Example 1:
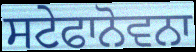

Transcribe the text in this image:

ਸਟੇਫਾਨੋਵਨਾ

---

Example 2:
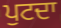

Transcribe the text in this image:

ਪੁਟਦਾ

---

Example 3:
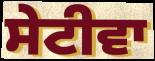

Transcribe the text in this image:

ਸੇਟੀਵਾ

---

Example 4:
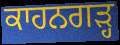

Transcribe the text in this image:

ਕਾਹਨਗੜ੍ਹ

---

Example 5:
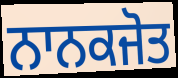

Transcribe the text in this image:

ਨਾਨਕਜੋਤ